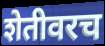
शेतीवरच